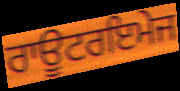
ਰਾਊਟਰਇਮੇਜ